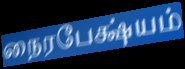
நைரபேக்ஷ்யம்